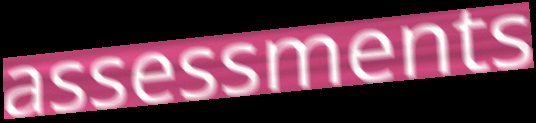
assessments